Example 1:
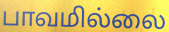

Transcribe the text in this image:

பாவமில்லை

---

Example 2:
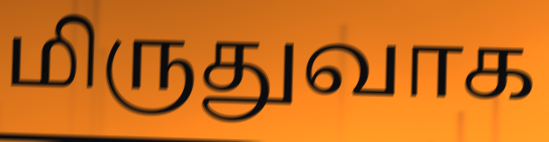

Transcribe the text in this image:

மிருதுவாக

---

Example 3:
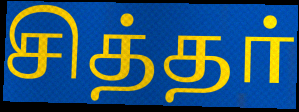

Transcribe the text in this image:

சித்தர்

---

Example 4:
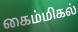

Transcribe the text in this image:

கைம்மிகல்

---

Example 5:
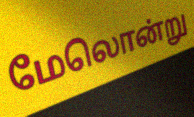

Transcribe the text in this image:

மேலொன்று